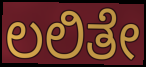
ಲಲಿತೇ